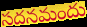
సదనమందు